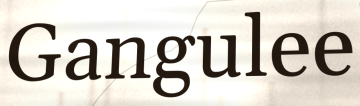
Gangulee